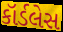
કૉર્ડલેસ